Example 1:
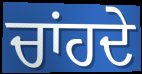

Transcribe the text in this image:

ਚਾਂਹਦੇ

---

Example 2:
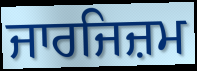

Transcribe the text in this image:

ਜਾਰਜਿਜ਼ਮ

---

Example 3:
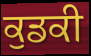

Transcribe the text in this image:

ਕੁਡਕੀ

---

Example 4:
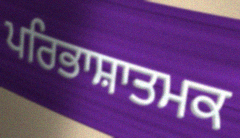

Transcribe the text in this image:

ਪਰਿਭਾਸ਼ਾਤਮਕ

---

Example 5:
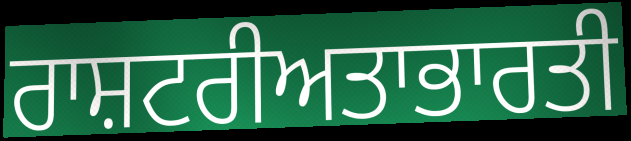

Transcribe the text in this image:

ਰਾਸ਼ਟਰੀਅਤਾਭਾਰਤੀ